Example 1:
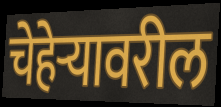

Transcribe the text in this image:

चेहेऱ्यावरील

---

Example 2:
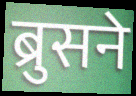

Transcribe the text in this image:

ब्रुसने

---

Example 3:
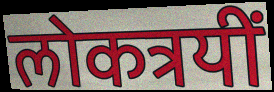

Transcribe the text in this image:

लोकत्रयीं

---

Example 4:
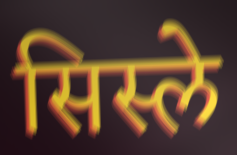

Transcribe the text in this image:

सिस्ले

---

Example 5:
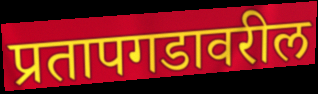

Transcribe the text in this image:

प्रतापगडावरील